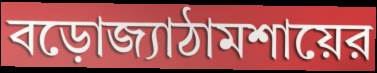
বড়োজ্যাঠামশায়ের